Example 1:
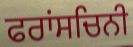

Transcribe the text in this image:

ਫਰਾਂਸਚਿਨੀ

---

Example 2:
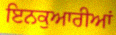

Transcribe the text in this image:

ਇਨਕੁਆਰੀਆਂ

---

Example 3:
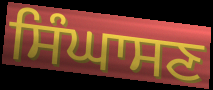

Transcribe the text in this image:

ਸਿੰਘਾਸਣ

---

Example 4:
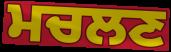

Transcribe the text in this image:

ਮਚਲਣ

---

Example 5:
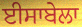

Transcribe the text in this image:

ਈਸਾਬੇਲਾ